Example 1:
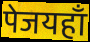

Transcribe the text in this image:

पेजयहाँ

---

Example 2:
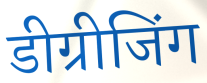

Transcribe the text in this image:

डीग्रीजिंग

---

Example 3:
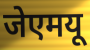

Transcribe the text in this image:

जेएमयू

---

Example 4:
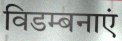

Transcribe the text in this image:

विडम्बनाएं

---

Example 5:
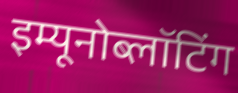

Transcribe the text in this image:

इम्यूनोब्लॉटिंग